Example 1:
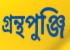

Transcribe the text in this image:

গ্রন্থপুঞ্জি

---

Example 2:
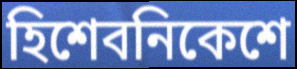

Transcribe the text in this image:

হিশেবনিকেশে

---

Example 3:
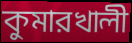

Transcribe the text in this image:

কুমারখালী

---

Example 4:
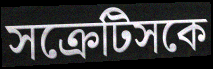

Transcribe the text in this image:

সক্রেটিসকে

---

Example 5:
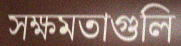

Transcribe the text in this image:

সক্ষমতাগুলি